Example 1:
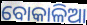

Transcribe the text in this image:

ବୋକାଳିଆ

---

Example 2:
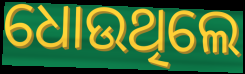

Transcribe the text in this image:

ଧୋଉଥିଲେ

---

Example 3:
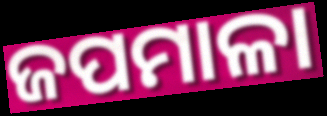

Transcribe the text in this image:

ଜପମାଳା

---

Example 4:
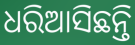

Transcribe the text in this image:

ଧରିଆସିଛନ୍ତି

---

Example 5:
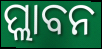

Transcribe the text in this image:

ପ୍ଲାବନ